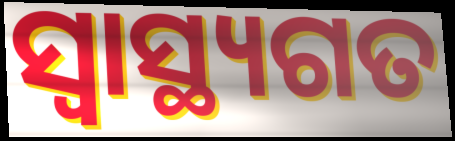
ସ୍ବାସ୍ଥ୍ୟଗତ